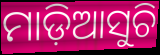
ମାଡ଼ିଆସୁଚି